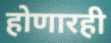
होणारही